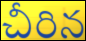
చీరిన